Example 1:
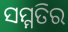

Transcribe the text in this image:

ସମ୍ମତିର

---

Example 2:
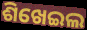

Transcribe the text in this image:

ଶିଖେଇଲ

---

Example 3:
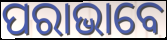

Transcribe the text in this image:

ପରାଭାବେ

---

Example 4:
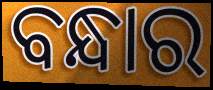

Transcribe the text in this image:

ବନ୍ଧାର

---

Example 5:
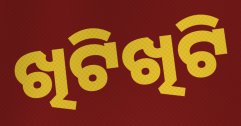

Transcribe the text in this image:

ଖିଟିଖିଟି